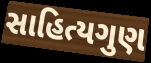
સાહિત્યગુણ